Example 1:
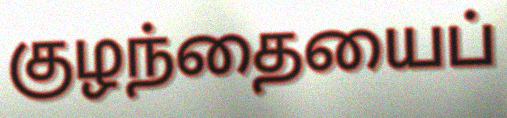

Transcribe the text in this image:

குழந்தையைப்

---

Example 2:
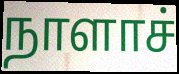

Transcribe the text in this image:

நாளாச்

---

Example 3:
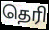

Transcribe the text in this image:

தெரி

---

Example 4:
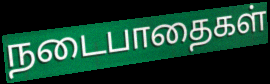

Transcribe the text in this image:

நடைபாதைகள்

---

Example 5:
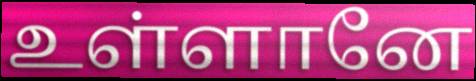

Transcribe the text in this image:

உள்ளானே